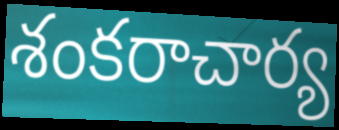
శంకరాచార్య